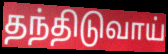
தந்திடுவாய்